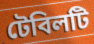
টেবিলটি